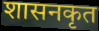
शासनकृत